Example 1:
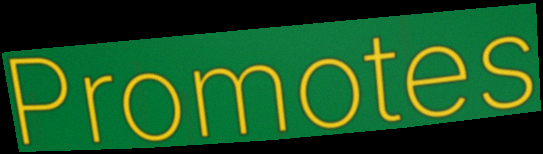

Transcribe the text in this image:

Promotes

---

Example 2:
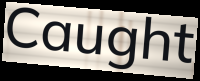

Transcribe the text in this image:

Caught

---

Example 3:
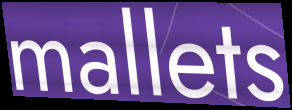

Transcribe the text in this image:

mallets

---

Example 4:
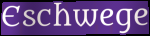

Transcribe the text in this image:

Eschwege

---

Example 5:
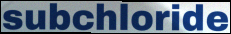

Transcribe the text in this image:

subchloride